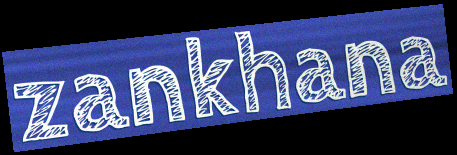
zankhana